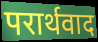
परार्थवाद